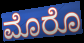
ಮೊರೊ